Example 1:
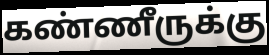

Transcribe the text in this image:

கண்ணீருக்கு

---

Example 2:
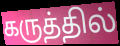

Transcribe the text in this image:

கருத்தில்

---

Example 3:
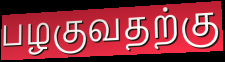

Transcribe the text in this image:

பழகுவதற்கு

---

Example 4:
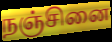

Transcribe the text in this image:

நஞ்சினை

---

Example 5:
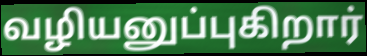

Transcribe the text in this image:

வழியனுப்புகிறார்